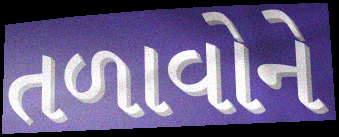
તળાવોને